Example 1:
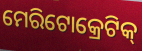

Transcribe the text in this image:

ମେରିଟୋକ୍ରେଟିକ୍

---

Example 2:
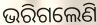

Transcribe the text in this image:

ଭରିଗଲେଣି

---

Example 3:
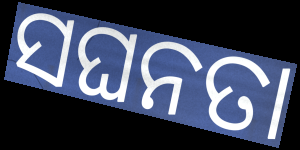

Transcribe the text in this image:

ସଘନତା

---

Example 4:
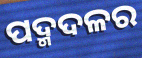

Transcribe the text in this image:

ପଦ୍ମଦଳର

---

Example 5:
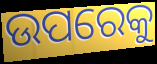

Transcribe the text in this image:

ଉପରେକୁ